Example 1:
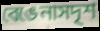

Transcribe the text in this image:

বেঙেনাসদৃশ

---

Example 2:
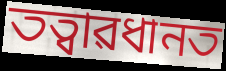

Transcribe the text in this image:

তত্বাৱধানত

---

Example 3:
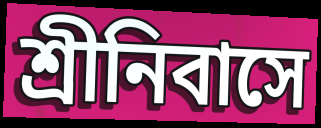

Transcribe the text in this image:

শ্ৰীনিবাসে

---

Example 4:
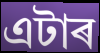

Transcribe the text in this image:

এটাৰ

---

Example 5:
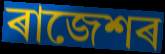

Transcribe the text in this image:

ৰাজেশৰ